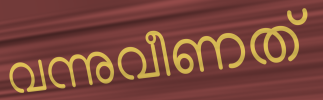
വന്നുവീണത്